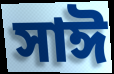
সাঈ